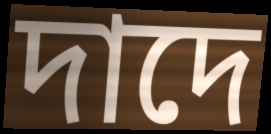
দাদে